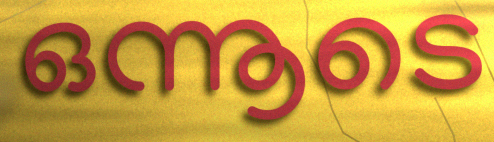
ഒന്നൂടെ